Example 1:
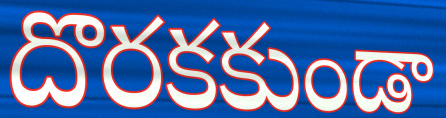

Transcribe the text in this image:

దొరకకుండా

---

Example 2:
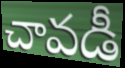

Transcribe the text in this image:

చావడీ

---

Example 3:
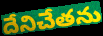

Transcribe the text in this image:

దేనిచేతను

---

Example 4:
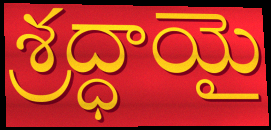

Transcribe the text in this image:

శ్రద్ధాయై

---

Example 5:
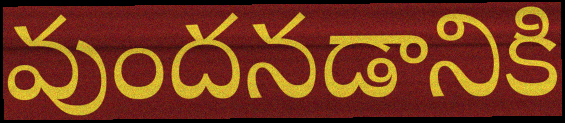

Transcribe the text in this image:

వుందనడానికి